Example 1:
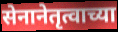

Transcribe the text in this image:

सेनानेतृत्वाच्या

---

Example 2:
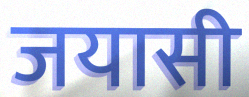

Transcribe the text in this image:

जयासी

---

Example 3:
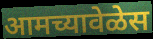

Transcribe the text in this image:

आमच्यावेळेस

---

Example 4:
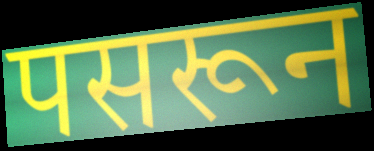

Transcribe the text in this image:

पसरून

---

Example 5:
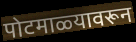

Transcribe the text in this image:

पोटमाळ्यावरून